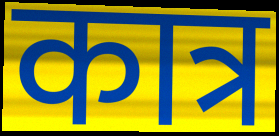
कात्र